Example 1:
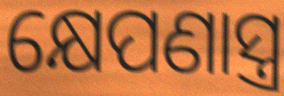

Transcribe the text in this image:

କ୍ଷେପଣାସ୍ତ୍ର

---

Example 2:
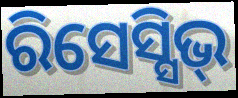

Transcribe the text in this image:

ରିସେସ୍ସିଭ୍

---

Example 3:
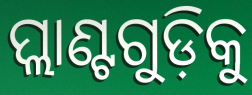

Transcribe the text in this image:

ପ୍ଲାଣ୍ଟଗୁଡ଼ିକୁ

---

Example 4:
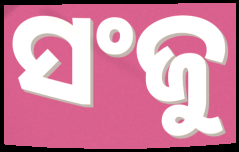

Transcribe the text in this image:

ସଂଜୁ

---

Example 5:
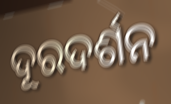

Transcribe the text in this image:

ଦୂରଦର୍ଶନ